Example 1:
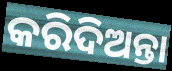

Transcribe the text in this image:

କରିଦିଅନ୍ତା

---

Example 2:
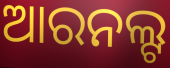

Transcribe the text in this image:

ଆରନଲ୍ଟ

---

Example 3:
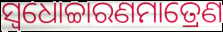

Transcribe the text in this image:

ସ୍ଵଧୋଚ୍ଚାରଣମାତ୍ରେଣ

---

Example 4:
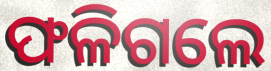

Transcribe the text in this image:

ଫଳିଗଲେ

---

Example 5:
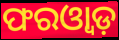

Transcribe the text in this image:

ଫରଓ୍ୱାଡ଼